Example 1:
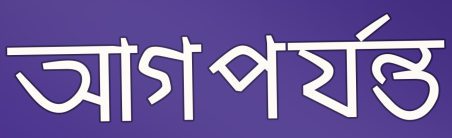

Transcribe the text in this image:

আগপর্যন্ত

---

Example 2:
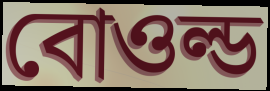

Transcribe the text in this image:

বোওল্ড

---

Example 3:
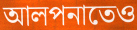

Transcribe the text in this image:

আলপনাতেও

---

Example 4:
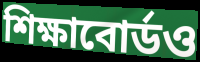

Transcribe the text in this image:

শিক্ষাবোর্ডও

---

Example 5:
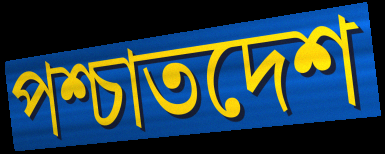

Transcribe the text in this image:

পশ্চাতদেশ